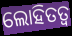
ଲୋହିତତ୍ଵ